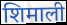
शिमाली